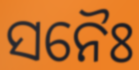
ସନୈଃ